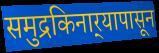
समुद्रकिनार्यापासून